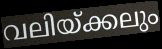
വലിയ്ക്കലും